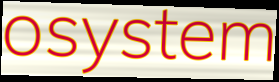
osystem